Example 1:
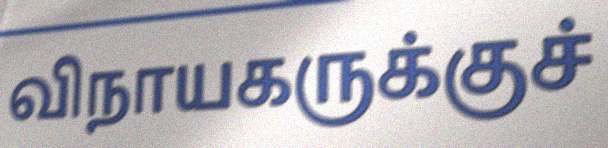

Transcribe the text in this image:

விநாயகருக்குச்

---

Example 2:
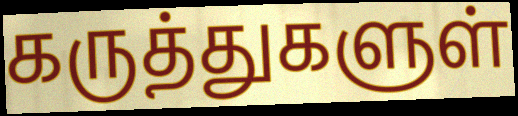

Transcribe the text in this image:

கருத்துகளுள்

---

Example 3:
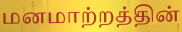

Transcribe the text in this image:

மனமாற்றத்தின்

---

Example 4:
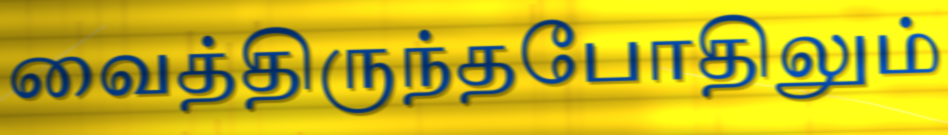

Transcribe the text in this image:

வைத்திருந்தபோதிலும்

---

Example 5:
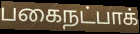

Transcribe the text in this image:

பகைநட்பாக்